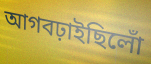
আগবঢ়াইছিলোঁ